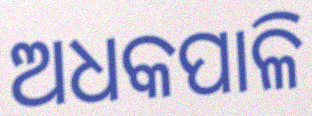
ଅଧକପାଳି